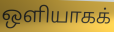
ஒளியாகக்